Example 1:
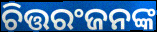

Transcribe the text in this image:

ଚିତ୍ତରଂଜନଙ୍କ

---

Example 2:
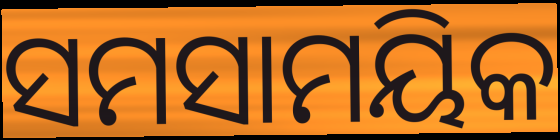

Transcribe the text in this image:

ସମସାମୟିକ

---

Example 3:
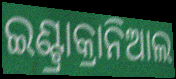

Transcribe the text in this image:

ଇଣ୍ଟ୍ରାକ୍ରାନିଆଲ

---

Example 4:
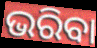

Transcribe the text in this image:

ଭରିବା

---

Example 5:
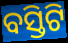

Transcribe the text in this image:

ବସ୍ତିଟି